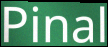
Pinal